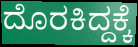
ದೊರಕಿದ್ದಕ್ಕೆ